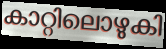
കാറ്റിലൊഴുകി